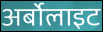
अर्बोलाइट